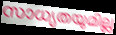
സാധ്യതയുമില്ല